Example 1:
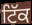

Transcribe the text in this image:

ਟਿੱਕ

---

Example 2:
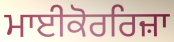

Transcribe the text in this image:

ਮਾਈਕੋਰਰਿਜ਼ਾ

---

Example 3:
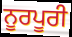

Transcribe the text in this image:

ਨੂਰਪੂਰੀ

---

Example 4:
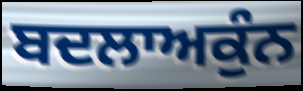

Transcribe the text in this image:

ਬਦਲਾਅਕੁੰਨ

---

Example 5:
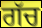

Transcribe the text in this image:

ਗੱਚ